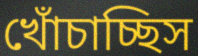
খোঁচাচ্ছিস